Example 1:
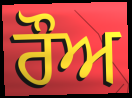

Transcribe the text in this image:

ਰੌਅ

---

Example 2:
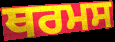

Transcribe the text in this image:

ਥਰਮਸ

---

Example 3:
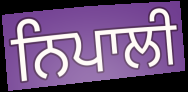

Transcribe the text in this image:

ਨਿਪਾਲੀ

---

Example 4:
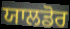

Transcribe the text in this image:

ਯਾਲਡੋਰ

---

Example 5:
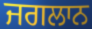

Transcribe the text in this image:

ਜਗਲਾਨ